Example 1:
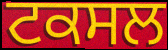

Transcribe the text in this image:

ਟਕਸਲ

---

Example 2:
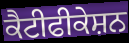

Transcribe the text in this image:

ਕੈਟੀਫੀਕੇਸ਼ਨ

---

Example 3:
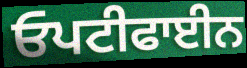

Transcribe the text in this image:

ਓਪਟੀਫਾਈਨ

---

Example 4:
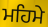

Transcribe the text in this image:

ਮਹਿਮੇ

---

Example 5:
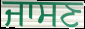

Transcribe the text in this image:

ਜਾਸਣ